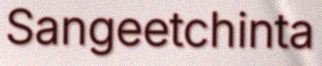
Sangeetchinta